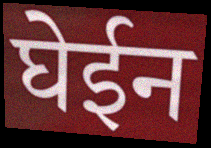
घेईन